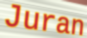
Juran